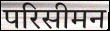
परिसीमन